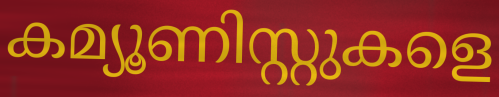
കമ്യൂണിസ്റ്റുകളെ